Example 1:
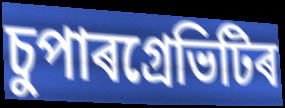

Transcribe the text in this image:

চুপাৰগ্ৰেভিটিৰ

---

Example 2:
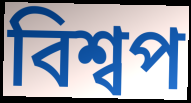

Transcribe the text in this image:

বিশ্বপ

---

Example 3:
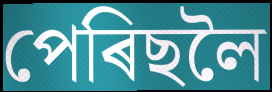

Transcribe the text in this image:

পেৰিছলৈ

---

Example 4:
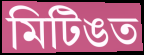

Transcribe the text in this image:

মিটিঙত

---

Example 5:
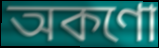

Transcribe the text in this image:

অকণো